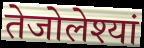
तेजोलेश्यां